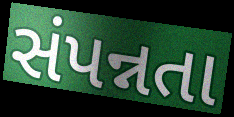
સંપન્નતા